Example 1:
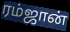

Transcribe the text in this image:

ரம்ஜான்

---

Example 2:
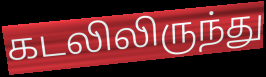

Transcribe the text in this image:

கடலிலிருந்து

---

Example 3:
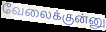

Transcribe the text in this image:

வேலைக்குன்னு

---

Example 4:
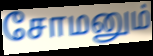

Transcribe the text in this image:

சோமனும்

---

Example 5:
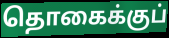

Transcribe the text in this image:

தொகைக்குப்